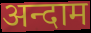
अन्दाम